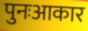
पुनःआकार